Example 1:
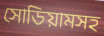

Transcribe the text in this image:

সোডিয়ামসহ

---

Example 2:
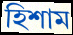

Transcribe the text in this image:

হিশাম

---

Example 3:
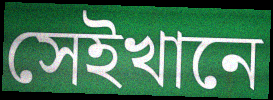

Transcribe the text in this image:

সেইখানে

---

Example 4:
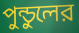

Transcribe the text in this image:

পুন্ডুলের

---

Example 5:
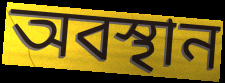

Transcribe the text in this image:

অবস্থান